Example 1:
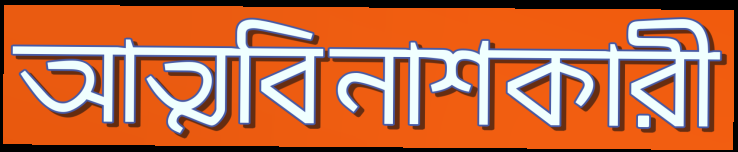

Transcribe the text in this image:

আত্মবিনাশকারী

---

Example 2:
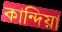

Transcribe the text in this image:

কান্দিয়া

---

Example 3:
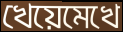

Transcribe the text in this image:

খেয়েমেখে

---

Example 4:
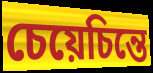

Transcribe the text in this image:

চেয়েচিন্তে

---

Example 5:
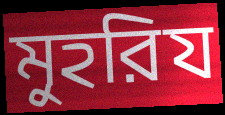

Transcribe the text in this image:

মুহরিয